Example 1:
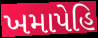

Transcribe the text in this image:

ખમાપેહિ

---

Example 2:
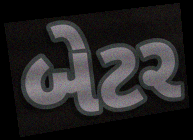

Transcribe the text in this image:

બેટર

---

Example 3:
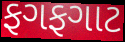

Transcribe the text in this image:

ફગફગાટ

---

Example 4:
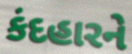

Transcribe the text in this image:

કંદહારને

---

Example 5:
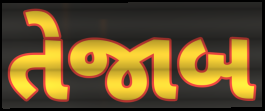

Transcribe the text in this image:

તેજાબ